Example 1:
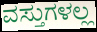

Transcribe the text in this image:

ವಸ್ತುಗಳಲ್ಲ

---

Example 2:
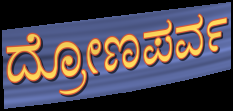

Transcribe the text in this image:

ದ್ರೋಣಪರ್ವ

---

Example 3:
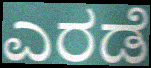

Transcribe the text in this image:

ಎರಡೆ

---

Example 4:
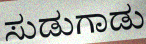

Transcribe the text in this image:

ಸುಡುಗಾಡು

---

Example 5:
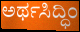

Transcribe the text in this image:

ಅರ್ಥಸಿದ್ಧಿಂ